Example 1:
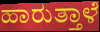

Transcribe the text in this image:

ಹಾರುತ್ತಾಳೆ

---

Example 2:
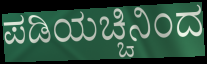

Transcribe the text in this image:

ಪಡಿಯಚ್ಚಿನಿಂದ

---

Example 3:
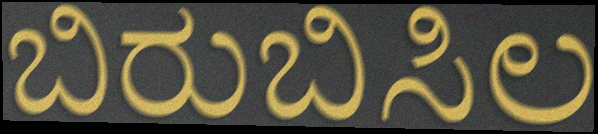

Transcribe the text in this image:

ಬಿರುಬಿಸಿಲ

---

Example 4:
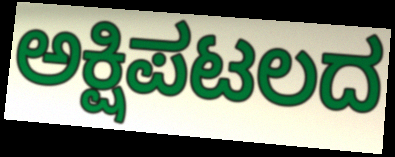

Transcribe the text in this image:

ಅಕ್ಷಿಪಟಲದ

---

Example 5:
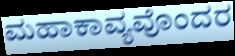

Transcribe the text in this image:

ಮಹಾಕಾವ್ಯವೊಂದರ